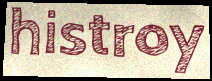
histroy